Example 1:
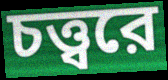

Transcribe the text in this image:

চত্ত্বরে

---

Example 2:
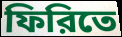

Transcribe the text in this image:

ফিরিতে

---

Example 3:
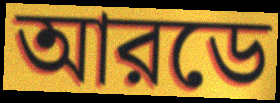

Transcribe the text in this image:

আরডে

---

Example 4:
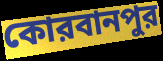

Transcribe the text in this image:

কোরবানপুর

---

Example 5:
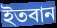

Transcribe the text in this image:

ইতবান